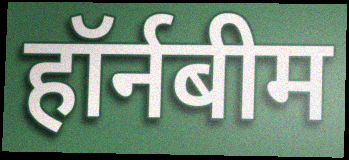
हॉर्नबीम